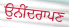
ਉਨੀਂਦਰਾਪਣ